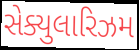
સેક્યુલારિઝમ